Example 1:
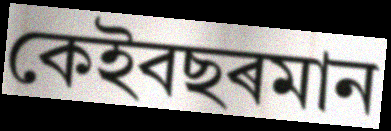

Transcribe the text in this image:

কেইবছৰমান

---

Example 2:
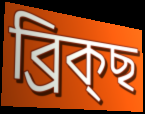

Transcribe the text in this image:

ব্ৰিক্‌ছ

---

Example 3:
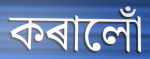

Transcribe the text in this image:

কৰালোঁ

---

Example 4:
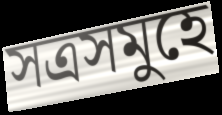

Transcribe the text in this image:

সত্ৰসমুহে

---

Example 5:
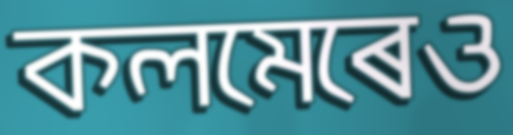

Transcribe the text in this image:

কলমেৰেও